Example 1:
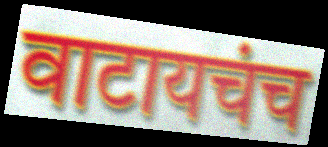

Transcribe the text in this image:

वाटायचंच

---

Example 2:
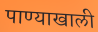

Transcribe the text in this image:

पाण्याखाली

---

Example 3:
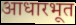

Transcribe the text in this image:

आधारभूत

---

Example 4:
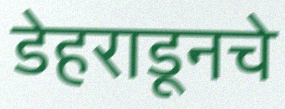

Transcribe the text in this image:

डेहराडूनचे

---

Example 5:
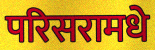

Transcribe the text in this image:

परिसरामधे